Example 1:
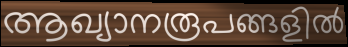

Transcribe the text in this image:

ആഖ്യാനരൂപങ്ങളിൽ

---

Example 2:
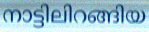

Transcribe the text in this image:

നാട്ടിലിറങ്ങിയ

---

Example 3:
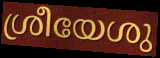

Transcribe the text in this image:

ശ്രീയേശു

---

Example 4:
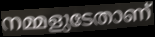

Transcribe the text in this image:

നമ്മളുടേതാണ്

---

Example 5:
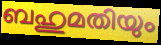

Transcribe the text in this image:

ബഹുമതിയും